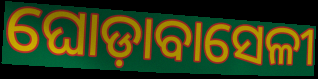
ଘୋଡ଼ାବାସେଳୀ